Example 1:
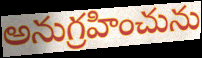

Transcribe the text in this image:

అనుగ్రహించును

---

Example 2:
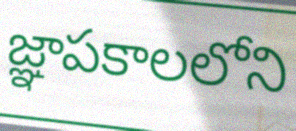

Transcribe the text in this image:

జ్ఞాపకాలలోని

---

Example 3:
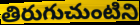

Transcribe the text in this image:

తిరుగుచుంటిని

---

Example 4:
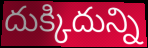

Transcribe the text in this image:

దుక్కిదున్ని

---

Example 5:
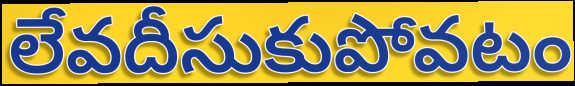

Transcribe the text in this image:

లేవదీసుకుపోవటం